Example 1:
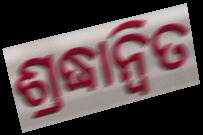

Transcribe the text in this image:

ଶ୍ରଦ୍ଧାନ୍ୱିତ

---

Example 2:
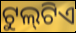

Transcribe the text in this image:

ଟୁଲ୍‍ଟିଏ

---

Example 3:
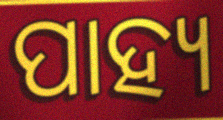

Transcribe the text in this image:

ପାହ୍ୟ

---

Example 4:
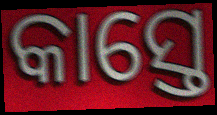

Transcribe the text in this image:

କାସ୍ତେ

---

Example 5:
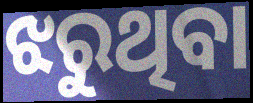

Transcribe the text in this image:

ଝରୁଥିବା